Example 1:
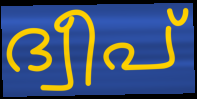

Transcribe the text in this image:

ദ്വീപ്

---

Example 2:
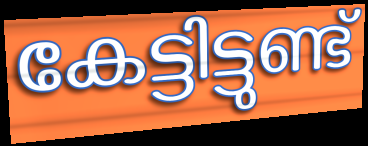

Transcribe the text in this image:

കേട്ടിട്ടുണ്ട്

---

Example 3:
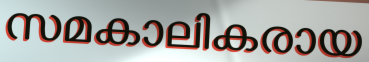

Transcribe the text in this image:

സമകാലികരായ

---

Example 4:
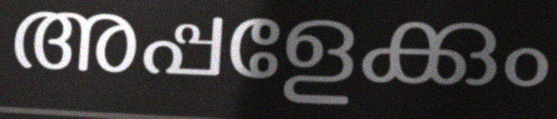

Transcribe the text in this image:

അപ്പളേക്കും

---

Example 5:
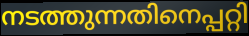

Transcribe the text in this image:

നടത്തുന്നതിനെപ്പറ്റി